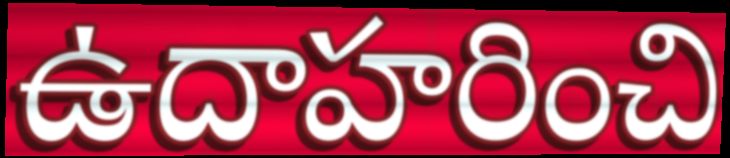
ఉదాహరించి